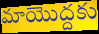
మాయొద్దకు